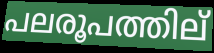
പലരൂപത്തില്